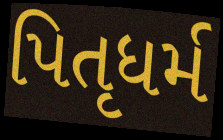
પિતૃધર્મ